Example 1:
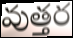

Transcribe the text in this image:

వుత్తర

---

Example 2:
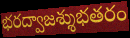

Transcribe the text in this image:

భరద్వాజశ్శుభతరం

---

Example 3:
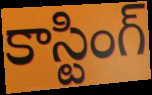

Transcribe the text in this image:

కాస్టింగ్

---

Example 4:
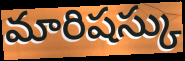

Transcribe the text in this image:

మారిషస్కు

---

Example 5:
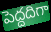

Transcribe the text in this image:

పెద్దదిగా